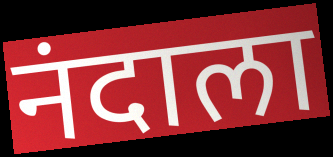
नंदाला